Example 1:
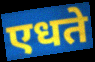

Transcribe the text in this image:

एधते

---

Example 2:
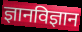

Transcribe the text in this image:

ज्ञानविज्ञान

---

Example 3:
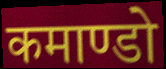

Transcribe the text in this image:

कमाण्डो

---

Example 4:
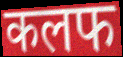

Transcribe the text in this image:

कलफ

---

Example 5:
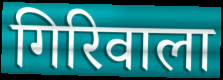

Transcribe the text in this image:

गिरिवाला